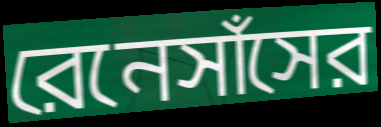
রেনেসাঁসের